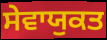
ਸੇਵਾਯੁਕਤ